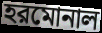
হরমোনাল